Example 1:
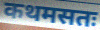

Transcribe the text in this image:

कथमसतः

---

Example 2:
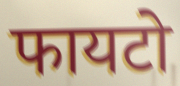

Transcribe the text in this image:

फायटो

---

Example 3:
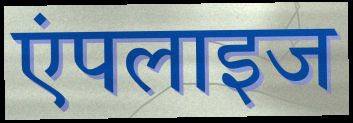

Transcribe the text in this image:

एंपलाइज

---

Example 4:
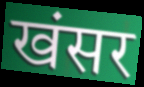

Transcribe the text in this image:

खंसर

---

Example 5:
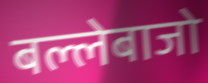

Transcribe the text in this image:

बल्लेबाजो